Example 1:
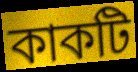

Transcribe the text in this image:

কাকটি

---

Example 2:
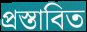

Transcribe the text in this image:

প্রস্তাবিত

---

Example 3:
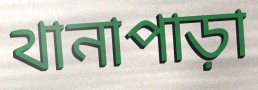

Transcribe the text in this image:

থানাপাড়া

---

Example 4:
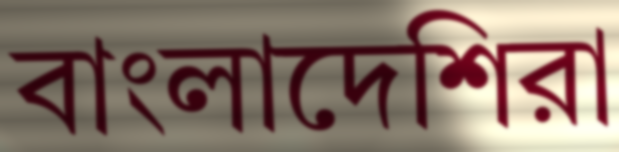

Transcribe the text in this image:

বাংলাদেশিরা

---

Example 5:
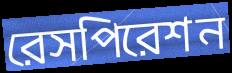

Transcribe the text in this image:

রেসপিরেশন